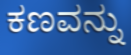
ಕಣವನ್ನು